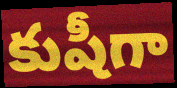
కుషీగా